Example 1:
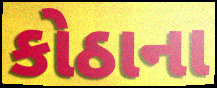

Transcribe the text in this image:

કોઠાના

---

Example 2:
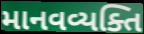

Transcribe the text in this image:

માનવવ્યક્તિ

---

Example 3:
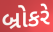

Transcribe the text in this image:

બ્રોકરે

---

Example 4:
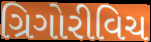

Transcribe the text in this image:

ગ્રિગોરીવિચ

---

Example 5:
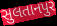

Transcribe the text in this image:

સુલતાનપુર